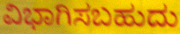
ವಿಭಾಗಿಸಬಹುದು